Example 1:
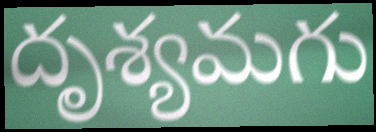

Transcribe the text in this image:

దృశ్యమగు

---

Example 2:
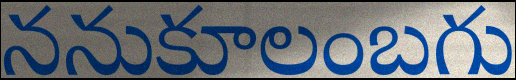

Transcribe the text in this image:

ననుకూలంబగు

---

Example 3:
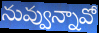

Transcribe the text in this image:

నువ్వున్నావో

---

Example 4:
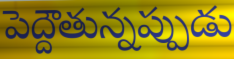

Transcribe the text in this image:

పెద్దౌతున్నప్పుడు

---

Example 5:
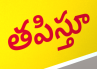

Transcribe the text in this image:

తపిస్తూ